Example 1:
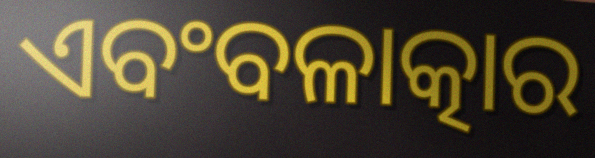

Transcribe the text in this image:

ଏବଂବଳାତ୍କାର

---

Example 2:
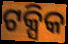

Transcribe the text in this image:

ଟକ୍ସିକ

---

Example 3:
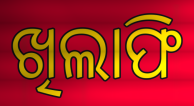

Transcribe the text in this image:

ଖିଲାଫି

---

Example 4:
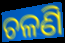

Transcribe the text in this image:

ଚଳଣି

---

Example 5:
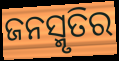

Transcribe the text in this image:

ଜନସ୍ମୃତିର